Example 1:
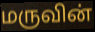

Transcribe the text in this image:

மருவின்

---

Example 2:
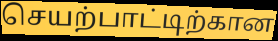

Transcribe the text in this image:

செயற்பாட்டிற்கான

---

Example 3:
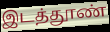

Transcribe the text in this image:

இடத்தூண்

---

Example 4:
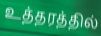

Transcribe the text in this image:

உத்தரத்தில்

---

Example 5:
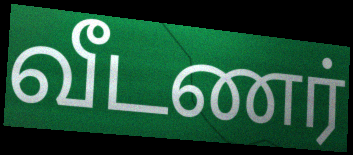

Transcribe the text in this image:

வீடணர்